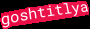
goshtitlya